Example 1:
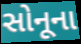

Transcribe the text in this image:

સોનૂના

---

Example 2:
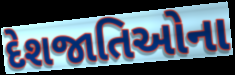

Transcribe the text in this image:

દેશજાતિઓના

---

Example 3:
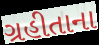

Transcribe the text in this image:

ગ્રહીતાના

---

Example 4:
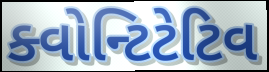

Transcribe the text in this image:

ક્વોન્ટિટેટિવ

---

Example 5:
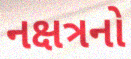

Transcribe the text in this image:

નક્ષત્રનો